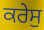
ਕਰੇਸੁ